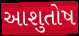
આશુતોષ